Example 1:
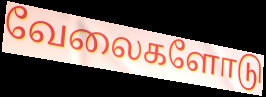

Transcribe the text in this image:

வேலைகளோடு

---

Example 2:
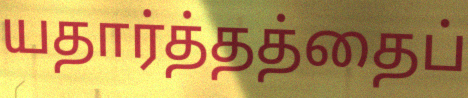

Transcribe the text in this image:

யதார்த்தத்தைப்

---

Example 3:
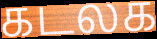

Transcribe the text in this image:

கடலக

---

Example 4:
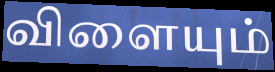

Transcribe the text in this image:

விளையும்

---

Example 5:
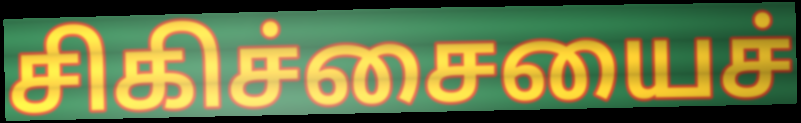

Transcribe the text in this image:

சிகிச்சையைச்